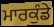
ਮਾਰਕੁੰਡੇ